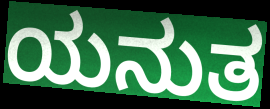
ಯನುತ